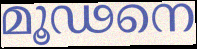
മൂഢനെ